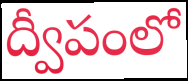
ద్వీపంలో